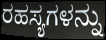
ರಹಸ್ಯಗಳನ್ನು